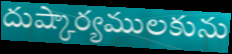
దుష్కార్యములకును